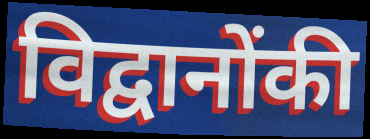
विद्वानोंकी